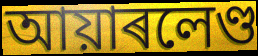
আয়াৰলেণ্ড